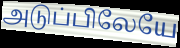
அடுப்பிலேயே